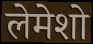
लेमेशो